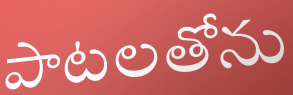
పాటలతోను